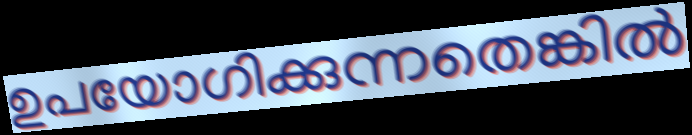
ഉപയോഗിക്കുന്നതെങ്കിൽ